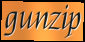
gunzip